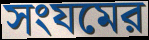
সংযমের